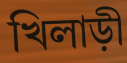
খিলাড়ী